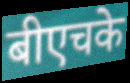
बीएचके